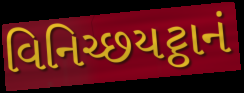
વિનિચ્છયટ્ઠાનં